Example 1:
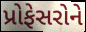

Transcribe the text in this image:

પ્રોફેસરોને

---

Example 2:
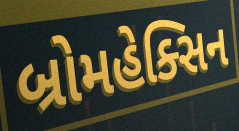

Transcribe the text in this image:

બ્રોમહેક્સિન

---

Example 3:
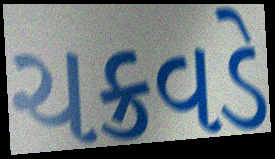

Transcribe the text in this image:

ચક્રવડે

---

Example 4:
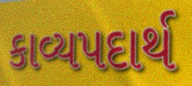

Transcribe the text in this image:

કાવ્યપદાર્થ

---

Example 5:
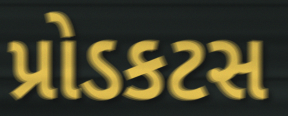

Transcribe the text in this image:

પ્રોડકટસ